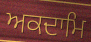
ਅਕਦਾਮਿ